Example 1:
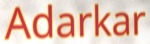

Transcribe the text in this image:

Adarkar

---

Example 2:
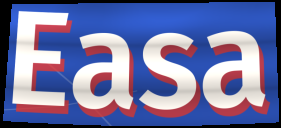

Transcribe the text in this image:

Easa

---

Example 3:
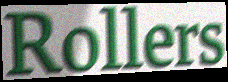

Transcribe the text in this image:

Rollers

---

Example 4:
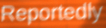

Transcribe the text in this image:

Reportedly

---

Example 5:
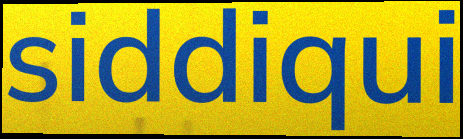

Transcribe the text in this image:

siddiqui